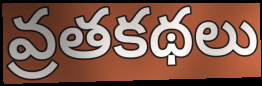
వ్రతకథలు